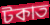
টকাত